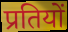
प्रतियों